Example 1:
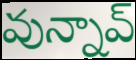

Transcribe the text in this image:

వున్నావ్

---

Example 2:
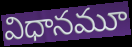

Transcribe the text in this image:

విధానమూ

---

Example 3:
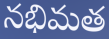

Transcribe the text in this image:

నభిమత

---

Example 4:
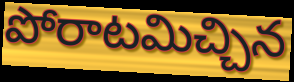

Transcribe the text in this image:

పోరాటమిచ్చిన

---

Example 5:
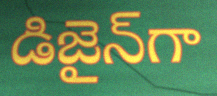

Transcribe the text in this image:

డిజైన్‌గా